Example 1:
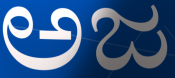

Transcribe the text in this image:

ಅಜ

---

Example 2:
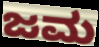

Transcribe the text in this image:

ಜಮ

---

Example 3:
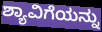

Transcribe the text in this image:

ಶ್ಯಾವಿಗೆಯನ್ನು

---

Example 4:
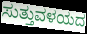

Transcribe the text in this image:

ಸುತ್ತುವಳಯದ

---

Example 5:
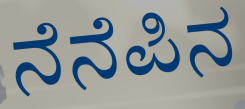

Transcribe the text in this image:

ನೆನೆಪಿನ